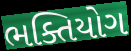
ભક્તિયોગ